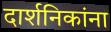
दार्शनिकांना